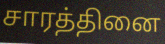
சாரத்தினை